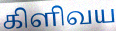
கிளிவய